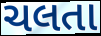
ચલતા